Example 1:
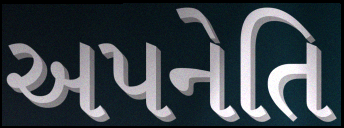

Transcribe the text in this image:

અપનેતિ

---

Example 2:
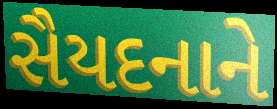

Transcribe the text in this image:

સૈયદનાને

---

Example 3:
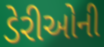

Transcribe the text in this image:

ડેરીઓની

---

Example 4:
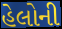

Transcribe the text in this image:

હેલોની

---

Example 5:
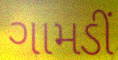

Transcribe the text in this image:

ગામડીં